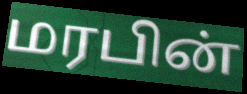
மரபின்